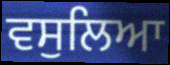
ਵਸੁਲਿਆ